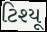
ટિશ્યૂ